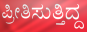
ಪ್ರೀತಿಸುತ್ತಿದ್ದ